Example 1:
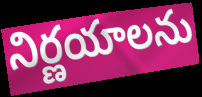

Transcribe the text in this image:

నిర్ణయాలను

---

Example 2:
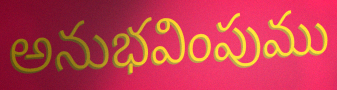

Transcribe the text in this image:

అనుభవింపుము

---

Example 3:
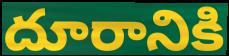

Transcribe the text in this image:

దూరానికి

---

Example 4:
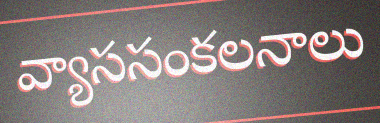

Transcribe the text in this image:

వ్యాససంకలనాలు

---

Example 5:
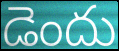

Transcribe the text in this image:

డెందు